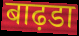
बाढ़डा